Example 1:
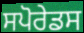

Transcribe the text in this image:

ਸਪੋਰੇਡਸ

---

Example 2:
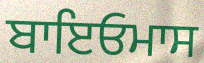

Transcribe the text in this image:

ਬਾਇਓਮਾਸ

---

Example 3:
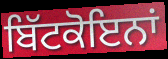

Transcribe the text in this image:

ਬਿੱਟਕੋਇਨਾਂ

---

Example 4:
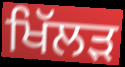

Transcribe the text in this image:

ਖਿੱਲੜ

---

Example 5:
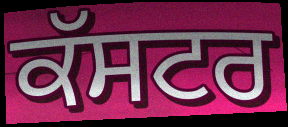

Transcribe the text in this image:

ਕੱਸਟਰ